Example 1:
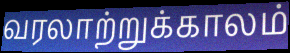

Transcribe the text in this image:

வரலாற்றுக்காலம்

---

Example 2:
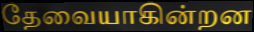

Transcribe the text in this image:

தேவையாகின்றன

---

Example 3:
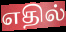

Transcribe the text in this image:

எதில்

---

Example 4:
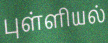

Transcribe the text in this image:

புள்ளியல்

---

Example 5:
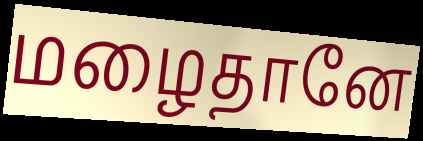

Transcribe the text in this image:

மழைதானே